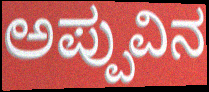
ಅಪ್ಪುವಿನ